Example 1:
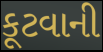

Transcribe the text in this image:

કૂટવાની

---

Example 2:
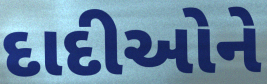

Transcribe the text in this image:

દાદીઓને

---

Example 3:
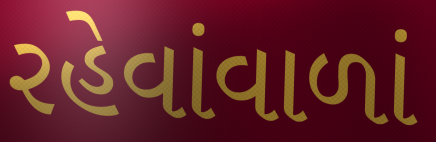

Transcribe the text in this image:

રહેવાંવાળાં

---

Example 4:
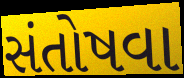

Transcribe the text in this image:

સંતોષવા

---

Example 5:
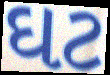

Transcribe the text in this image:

ઘટ